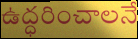
ఉద్ధరించాలనే